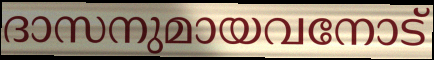
ദാസനുമായവനോട്